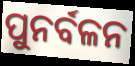
ପୁନର୍ବଳନ